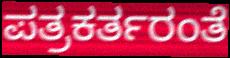
ಪತ್ರಕರ್ತರಂತೆ